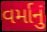
વર્માનું